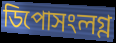
ডিপোসংলগ্ন